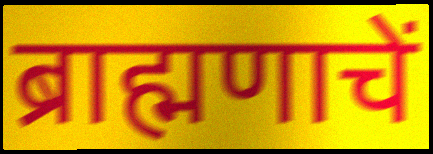
ब्राह्मणाचें